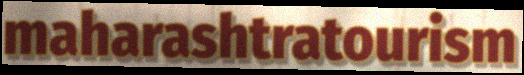
maharashtratourism